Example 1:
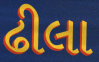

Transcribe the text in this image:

ઢીલા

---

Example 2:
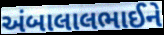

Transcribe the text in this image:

અંબાલાલભાઈને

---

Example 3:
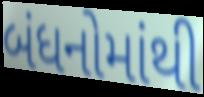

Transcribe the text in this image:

બંધનોમાંથી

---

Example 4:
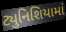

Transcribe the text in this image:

ટ્યુનિશિયામાં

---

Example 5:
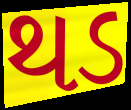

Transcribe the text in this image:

થડ